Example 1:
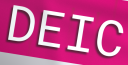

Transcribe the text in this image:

DEIC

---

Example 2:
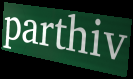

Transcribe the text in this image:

parthiv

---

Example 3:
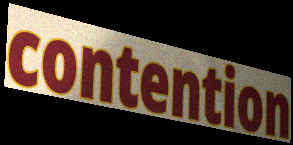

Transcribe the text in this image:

contention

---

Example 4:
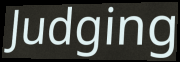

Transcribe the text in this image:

Judging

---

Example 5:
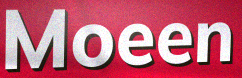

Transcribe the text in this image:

Moeen